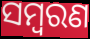
ସମ୍ଵରଣ